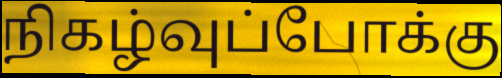
நிகழ்வுப்போக்கு